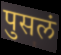
पुसलं